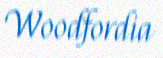
Woodfordia